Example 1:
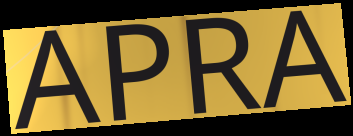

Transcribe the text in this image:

APRA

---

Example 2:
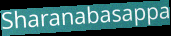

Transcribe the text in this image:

Sharanabasappa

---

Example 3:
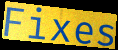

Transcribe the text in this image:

Fixes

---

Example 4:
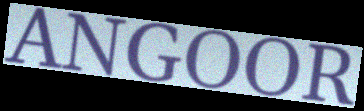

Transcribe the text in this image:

ANGOOR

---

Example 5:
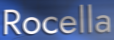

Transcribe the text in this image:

Rocella